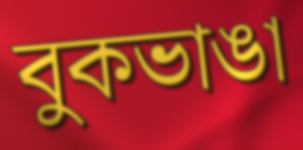
বুকভাঙা